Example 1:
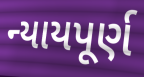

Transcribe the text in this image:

ન્યાયપૂર્ણ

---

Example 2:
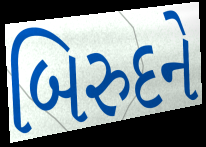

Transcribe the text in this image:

બિરુદને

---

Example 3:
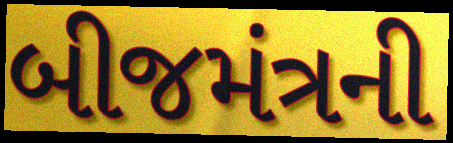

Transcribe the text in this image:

બીજમંત્રની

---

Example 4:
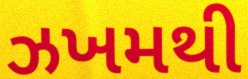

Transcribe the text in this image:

ઝખમથી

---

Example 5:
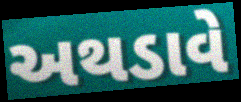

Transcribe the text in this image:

અથડાવે